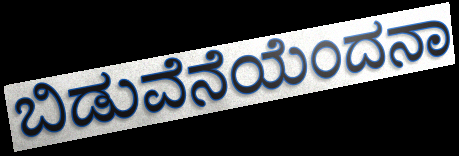
ಬಿಡುವೆನೆಯೆಂದನಾ